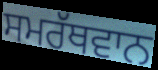
ਸਮਰੱਥਵਾਨ